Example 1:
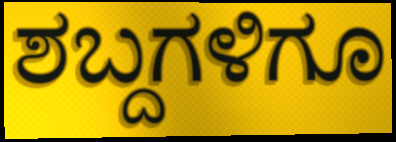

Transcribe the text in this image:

ಶಬ್ದಗಳಿಗೂ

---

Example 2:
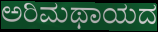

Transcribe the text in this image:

ಅರಿಮಥಾಯದ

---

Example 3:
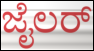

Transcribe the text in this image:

ಜೈಲರ್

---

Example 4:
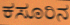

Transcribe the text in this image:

ಕಸೂರಿನ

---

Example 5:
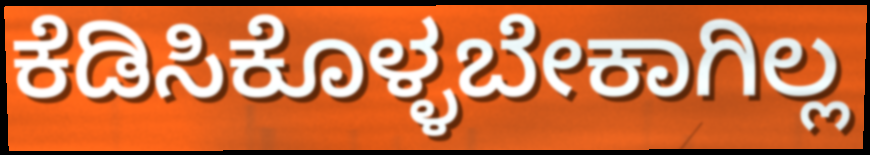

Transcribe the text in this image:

ಕೆಡಿಸಿಕೊಳ್ಳಬೇಕಾಗಿಲ್ಲ